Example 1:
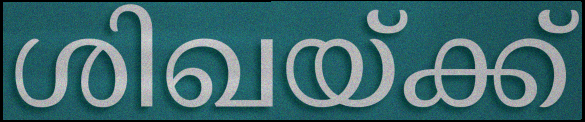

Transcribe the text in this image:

ശിഖയ്ക്ക്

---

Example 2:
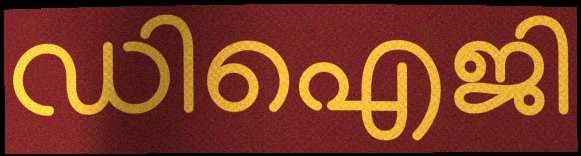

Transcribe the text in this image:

ഡിഐജി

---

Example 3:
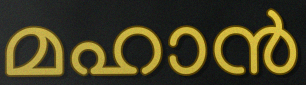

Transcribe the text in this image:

മഹാൻ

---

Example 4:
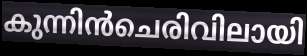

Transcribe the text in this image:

കുന്നിൻചെരിവിലായി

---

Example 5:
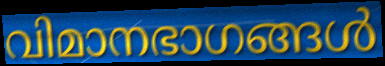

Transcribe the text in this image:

വിമാനഭാഗങ്ങൾ